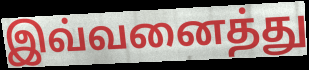
இவ்வனைத்து